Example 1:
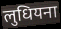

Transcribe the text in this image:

लुधियना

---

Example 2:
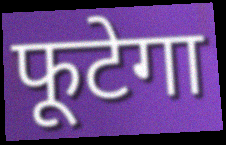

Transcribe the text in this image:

फूटेगा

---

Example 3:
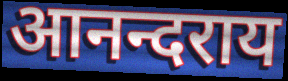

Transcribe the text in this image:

आनन्दराय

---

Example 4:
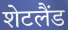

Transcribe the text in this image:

शेटलैंड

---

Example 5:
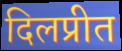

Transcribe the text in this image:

दिलप्रीत